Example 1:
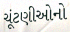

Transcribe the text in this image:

ચૂંટણીઓનો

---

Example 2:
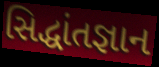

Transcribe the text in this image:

સિદ્ધાંતજ્ઞાન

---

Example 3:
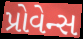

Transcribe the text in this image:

પ્રોવેન્સ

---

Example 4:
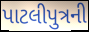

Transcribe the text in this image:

પાટલીપુત્રની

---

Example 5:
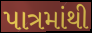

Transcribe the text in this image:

પાત્રમાંથી